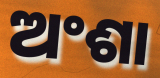
ଅଂଶା